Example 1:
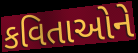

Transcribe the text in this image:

કવિતાઓને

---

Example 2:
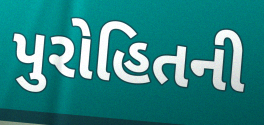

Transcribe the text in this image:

પુરોહિતની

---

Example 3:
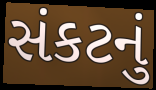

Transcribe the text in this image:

સંકટનું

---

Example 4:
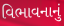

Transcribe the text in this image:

વિભાવનાનું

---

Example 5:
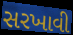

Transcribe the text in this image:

સરખાવી